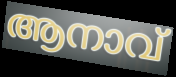
ആനാവ്